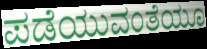
ಪಡೆಯುವಂತೆಯೂ